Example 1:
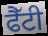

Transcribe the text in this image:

ਫੈੱਟੀ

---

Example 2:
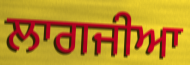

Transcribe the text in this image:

ਲਾਗਜੀਆ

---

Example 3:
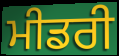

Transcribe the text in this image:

ਮੀਡਰੀ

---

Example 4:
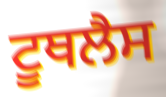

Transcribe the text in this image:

ਟੂਥਲੈਸ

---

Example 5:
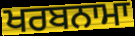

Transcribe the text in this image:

ਖਰਬਨਾਮਾ